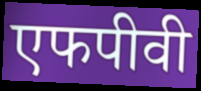
एफपीवी